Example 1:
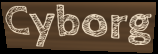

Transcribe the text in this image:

Cyborg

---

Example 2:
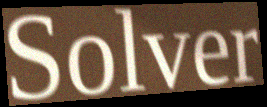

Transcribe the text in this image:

Solver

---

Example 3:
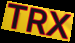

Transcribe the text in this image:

TRX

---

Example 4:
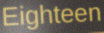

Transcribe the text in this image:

Eighteen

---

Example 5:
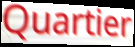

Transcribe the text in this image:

Quartier